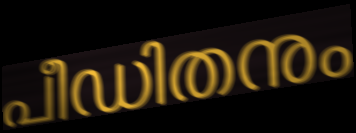
പീഡിതനും